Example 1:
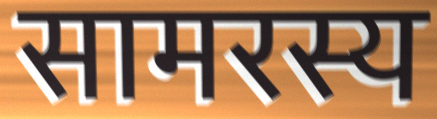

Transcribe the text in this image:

सामरस्य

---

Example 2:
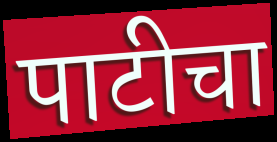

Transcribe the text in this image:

पाटीचा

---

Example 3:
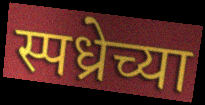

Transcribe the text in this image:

स्पध्रेच्या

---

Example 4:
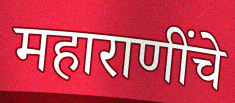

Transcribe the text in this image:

महाराणींचे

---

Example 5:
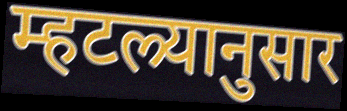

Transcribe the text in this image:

म्हटल्यानुसार